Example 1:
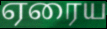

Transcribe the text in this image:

ஏரைய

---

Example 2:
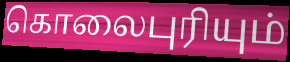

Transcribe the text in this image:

கொலைபுரியும்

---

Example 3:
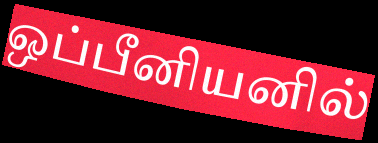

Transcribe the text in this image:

ஒப்பீனியனில்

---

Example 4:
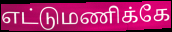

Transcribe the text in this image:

எட்டுமணிக்கே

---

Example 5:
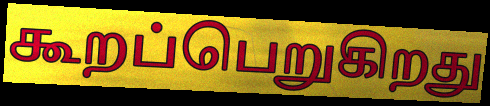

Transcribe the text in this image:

கூறப்பெறுகிறது